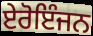
ਏਰੋਇੰਜਨ